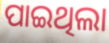
ପାଇଥିଲା